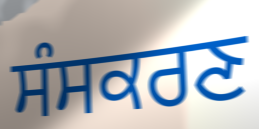
ਸੰਸਕਰਣ